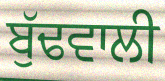
ਬੁੱਢਵਾਲੀ